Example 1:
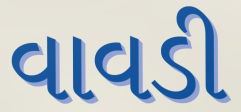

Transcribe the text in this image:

વાવડી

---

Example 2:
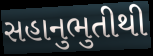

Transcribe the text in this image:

સહાનુભુતીથી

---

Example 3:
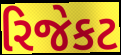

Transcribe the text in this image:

રિજેકટ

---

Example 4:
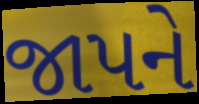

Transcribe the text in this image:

જાપને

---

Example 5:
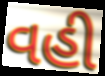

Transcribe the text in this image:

વહી